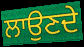
ਲਾਉਣਦੇ